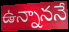
ఉన్నాననే